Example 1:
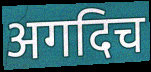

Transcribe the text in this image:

अगदिच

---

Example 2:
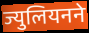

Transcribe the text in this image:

ज्युलियनने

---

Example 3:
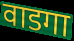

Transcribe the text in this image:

वाडगा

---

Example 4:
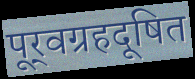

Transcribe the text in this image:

पूर्वग्रहदूषित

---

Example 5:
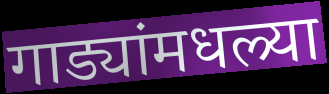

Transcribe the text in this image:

गाड्यांमधल्या